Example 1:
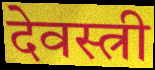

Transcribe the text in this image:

देवस्त्री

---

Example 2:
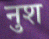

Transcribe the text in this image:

नुश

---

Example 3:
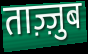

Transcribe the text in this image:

ताज़्ज़ुब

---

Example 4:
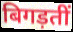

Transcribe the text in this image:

बिगड़तीं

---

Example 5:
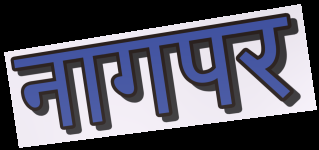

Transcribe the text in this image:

नागपर